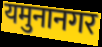
यमुनानगर